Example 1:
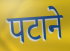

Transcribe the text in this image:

पटाने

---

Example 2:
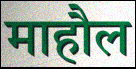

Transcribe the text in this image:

माहौल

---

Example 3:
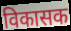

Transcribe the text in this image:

विकासक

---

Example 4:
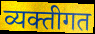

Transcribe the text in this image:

व्यक्तीगत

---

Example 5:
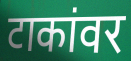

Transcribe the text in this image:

टाकांवर